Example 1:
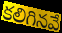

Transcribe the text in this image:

కలిగినవే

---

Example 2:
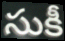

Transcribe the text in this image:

సుకీ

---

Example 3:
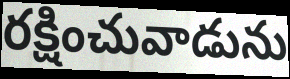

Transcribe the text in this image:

రక్షించువాడును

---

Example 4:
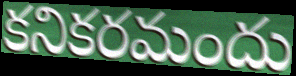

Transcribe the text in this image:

కనికరమందు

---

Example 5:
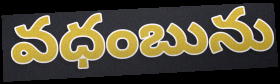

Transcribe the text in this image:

వధంబును